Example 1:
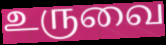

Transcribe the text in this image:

உருவை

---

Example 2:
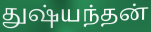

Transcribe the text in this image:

துஷ்யந்தன்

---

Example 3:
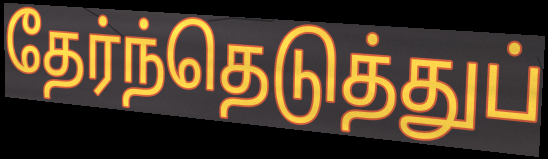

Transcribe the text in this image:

தேர்ந்தெடுத்துப்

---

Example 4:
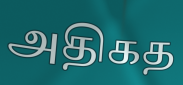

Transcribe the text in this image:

அதிகத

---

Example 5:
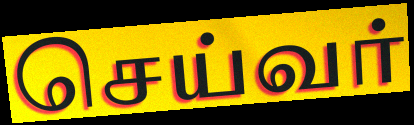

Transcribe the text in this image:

செய்வர்